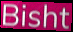
Bisht